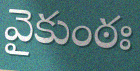
వైకుంఠః